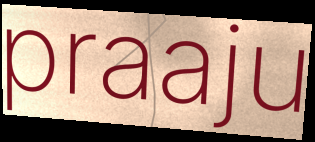
praaju